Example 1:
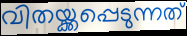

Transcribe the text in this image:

വിതയ്ക്കപ്പെടുന്നത്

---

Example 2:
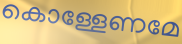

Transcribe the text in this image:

കൊള്ളേണമേ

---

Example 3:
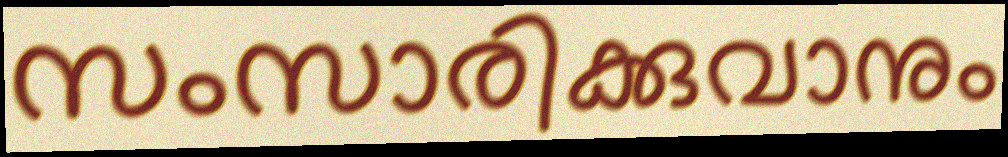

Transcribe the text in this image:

സംസാരിക്കുവാനും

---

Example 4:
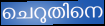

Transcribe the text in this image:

ചെറുതിനെ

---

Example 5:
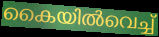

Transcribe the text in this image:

കൈയിൽവെച്ച്